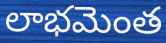
లాభమెంత